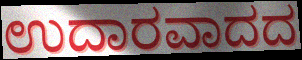
ಉದಾರವಾದದ